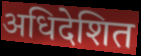
अधिदेशित